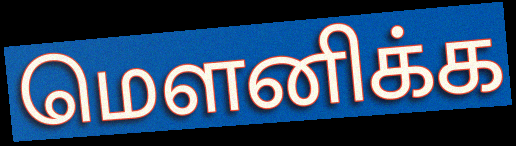
மெளனிக்க